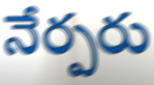
నేర్పరు